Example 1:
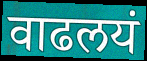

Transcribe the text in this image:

वाढलयं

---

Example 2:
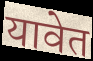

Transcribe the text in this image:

यावेत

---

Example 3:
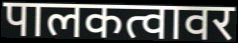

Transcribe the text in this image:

पालकत्वावर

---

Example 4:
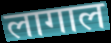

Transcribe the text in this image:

लागाल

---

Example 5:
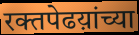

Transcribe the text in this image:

रक्तपेढय़ांच्या